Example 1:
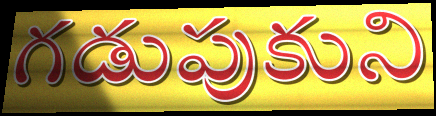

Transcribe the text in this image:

గడుపుకుని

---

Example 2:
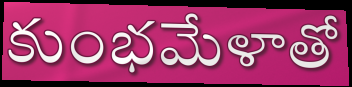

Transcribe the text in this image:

కుంభమేళాతో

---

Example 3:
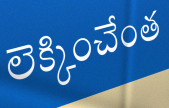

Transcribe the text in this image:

లెక్కించేంత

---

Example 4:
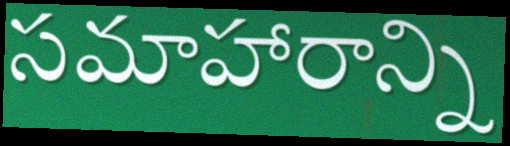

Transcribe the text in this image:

సమాహారాన్ని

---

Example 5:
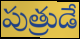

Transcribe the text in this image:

పుత్రుడే